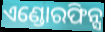
ଏଣ୍ଡୋରଫିନ୍ସ